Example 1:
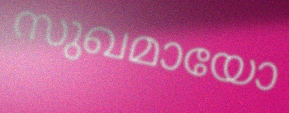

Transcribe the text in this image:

സുഖമായോ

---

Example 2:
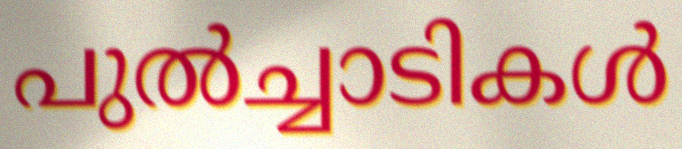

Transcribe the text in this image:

പുൽച്ചാടികൾ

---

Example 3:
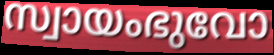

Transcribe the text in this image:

സ്വായംഭുവോ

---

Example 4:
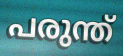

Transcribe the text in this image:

പരുന്ത്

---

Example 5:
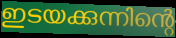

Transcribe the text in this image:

ഇടയക്കുന്നിന്റെ